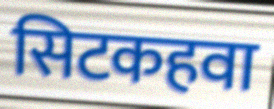
सिटकहवा